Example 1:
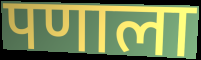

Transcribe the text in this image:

पणाला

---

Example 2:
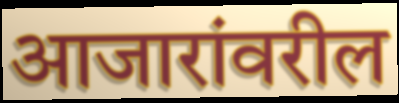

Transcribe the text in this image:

आजारांवरील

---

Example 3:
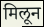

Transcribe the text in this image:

मिलून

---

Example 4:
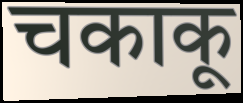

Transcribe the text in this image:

चकाकू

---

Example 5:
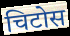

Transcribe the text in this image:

चिटोस